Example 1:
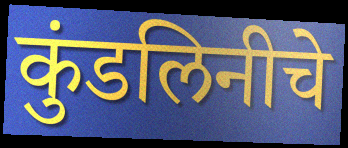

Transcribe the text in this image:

कुंडलिनीचे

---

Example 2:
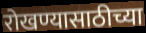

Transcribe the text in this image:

रोखण्यासाठीच्या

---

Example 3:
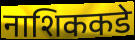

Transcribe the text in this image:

नाशिककडे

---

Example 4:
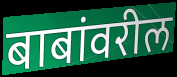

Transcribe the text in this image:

बाबांवरील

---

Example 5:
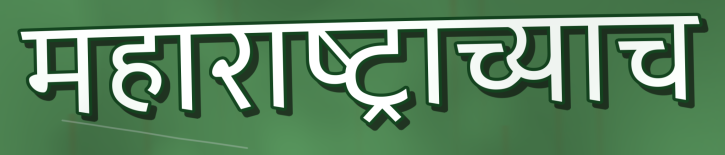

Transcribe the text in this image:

महाराष्ट्राच्याच